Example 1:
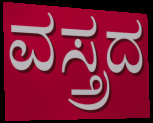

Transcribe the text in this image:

ವಸ್ತ್ರದ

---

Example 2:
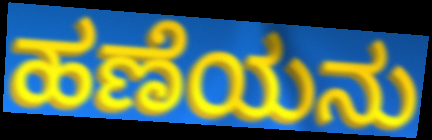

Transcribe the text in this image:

ಹಣೆಯನು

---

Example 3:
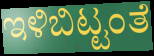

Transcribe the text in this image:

ಇಳಿಬಿಟ್ಟಂತೆ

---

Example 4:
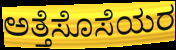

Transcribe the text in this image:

ಅತ್ತೆಸೊಸೆಯರ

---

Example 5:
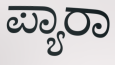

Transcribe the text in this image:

ಪ್ಯಾರಾ